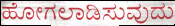
ಹೋಗಲಾಡಿಸುವುದು